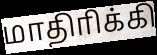
மாதிரிக்கி